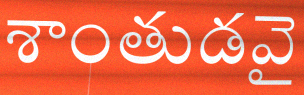
శాంతుడవై